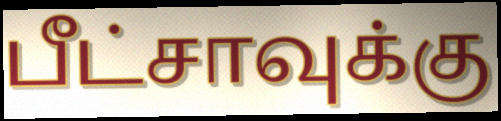
பீட்சாவுக்கு